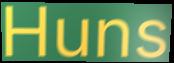
Huns